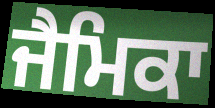
ਜੈਮਿਕਾ